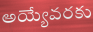
అయ్యేవరకు